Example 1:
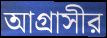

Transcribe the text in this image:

আগ্রাসীর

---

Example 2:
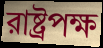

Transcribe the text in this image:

রাষ্ট্রপক্ষ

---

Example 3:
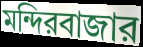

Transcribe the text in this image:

মন্দিরবাজার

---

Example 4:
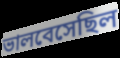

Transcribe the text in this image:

ভালবেসেছিল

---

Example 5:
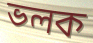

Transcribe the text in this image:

ভলক